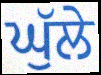
ਘੁੱਲੇ